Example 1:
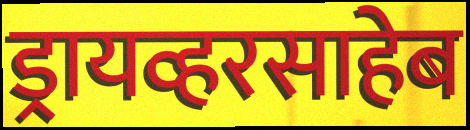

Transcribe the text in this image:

ड्रायव्हरसाहेब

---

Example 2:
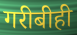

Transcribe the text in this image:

गरीबीही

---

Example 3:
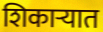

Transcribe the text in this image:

शिकाऱ्यात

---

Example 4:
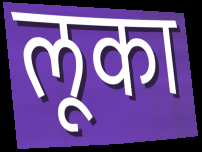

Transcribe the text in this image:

लूका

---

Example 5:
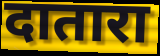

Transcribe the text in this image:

दातारा